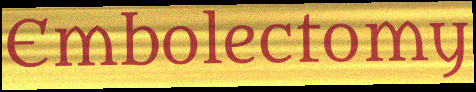
Embolectomy